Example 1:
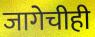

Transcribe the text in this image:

जागेचीही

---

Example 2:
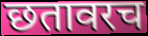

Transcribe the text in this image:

छतावरच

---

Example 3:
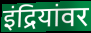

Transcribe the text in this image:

इंद्रियांवर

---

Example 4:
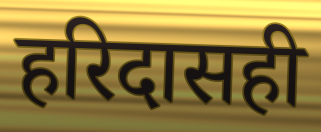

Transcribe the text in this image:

हरिदासही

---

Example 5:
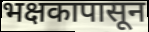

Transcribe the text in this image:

भक्षकापासून